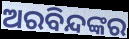
ଅରବିନ୍ଦଙ୍କର